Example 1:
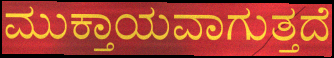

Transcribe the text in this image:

ಮುಕ್ತಾಯವಾಗುತ್ತದೆ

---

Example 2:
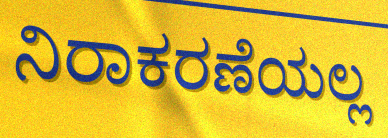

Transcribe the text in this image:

ನಿರಾಕರಣೆಯಲ್ಲ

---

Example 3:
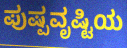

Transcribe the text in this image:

ಪುಷ್ಪವೃಷ್ಟಿಯ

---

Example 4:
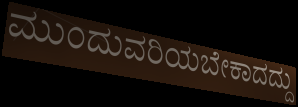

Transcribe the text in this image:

ಮುಂದುವರಿಯಬೇಕಾದದ್ದು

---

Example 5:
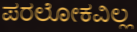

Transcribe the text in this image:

ಪರಲೋಕವಿಲ್ಲ